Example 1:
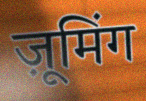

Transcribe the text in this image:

ज़ूमिंग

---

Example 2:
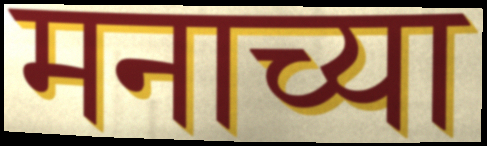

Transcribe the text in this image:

मनाच्या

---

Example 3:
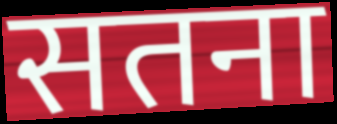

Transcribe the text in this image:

सतना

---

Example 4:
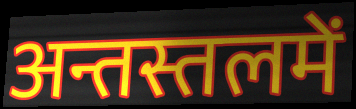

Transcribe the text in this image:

अन्तस्तलमें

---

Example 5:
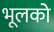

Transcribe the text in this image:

भूलको